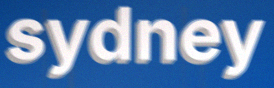
sydney